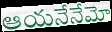
ఆయనేనేమో